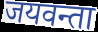
जयवन्ता